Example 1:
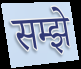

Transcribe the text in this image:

सम्झे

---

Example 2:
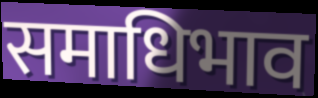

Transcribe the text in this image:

समाधिभाव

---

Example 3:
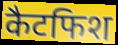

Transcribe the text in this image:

कैटफिश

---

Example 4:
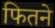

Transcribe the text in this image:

फितने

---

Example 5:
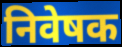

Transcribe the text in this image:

निवेषक